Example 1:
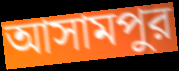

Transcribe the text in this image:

আসামপুর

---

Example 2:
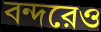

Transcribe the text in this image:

বন্দরেও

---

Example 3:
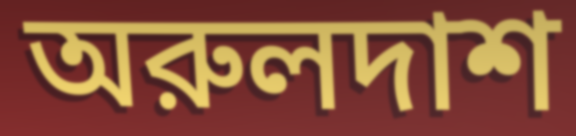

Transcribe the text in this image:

অরুলদাশ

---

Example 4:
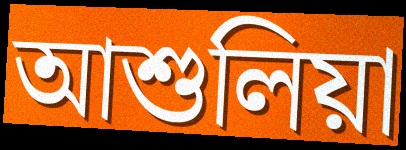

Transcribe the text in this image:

আশুলিয়া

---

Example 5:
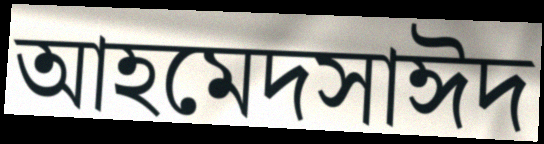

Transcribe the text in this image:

আহমেদসাঈদ